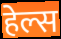
हेल्स